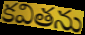
కవితను